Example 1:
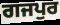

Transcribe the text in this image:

ਗਜਪੁਰ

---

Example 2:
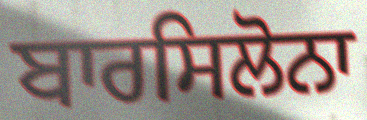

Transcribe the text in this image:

ਬਾਰਸਿਲੋਨਾ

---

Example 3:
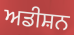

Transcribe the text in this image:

ਅਡੀਸ਼ਨ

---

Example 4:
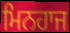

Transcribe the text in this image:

ਮਿਨਹਾਜ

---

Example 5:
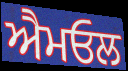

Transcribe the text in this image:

ਐਮਓਲ